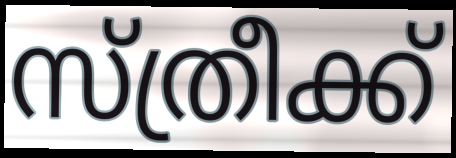
സ്ത്രീക്ക്